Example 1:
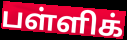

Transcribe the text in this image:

பள்ளிக்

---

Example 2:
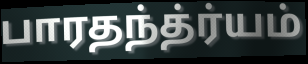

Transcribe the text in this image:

பாரதந்த்ர்யம்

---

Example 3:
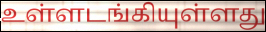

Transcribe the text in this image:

உள்ளடங்கியுள்ளது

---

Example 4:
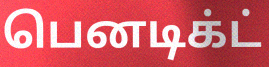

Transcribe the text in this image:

பெனடிக்ட்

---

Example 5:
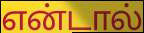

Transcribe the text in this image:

என்டால்